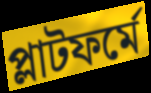
প্লাটফর্মে